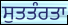
ਸੁਤਤੰਰਤਾ